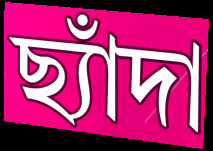
ছ্যাঁদা